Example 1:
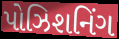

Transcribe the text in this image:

પોઝિશનિંગ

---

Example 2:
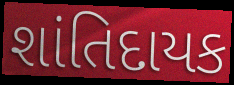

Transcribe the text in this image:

શાંતિદાયક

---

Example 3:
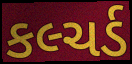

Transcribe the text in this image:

કલ્ચર્ડ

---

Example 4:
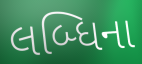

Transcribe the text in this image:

લબ્ધિના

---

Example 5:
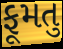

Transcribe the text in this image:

ફૂમતુ